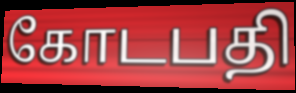
கோடபதி